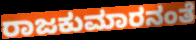
ರಾಜಕುಮಾರನಂತೆ